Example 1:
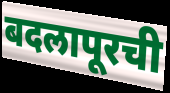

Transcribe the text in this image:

बदलापूरची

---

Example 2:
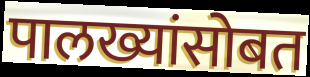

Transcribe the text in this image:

पालख्यांसोबत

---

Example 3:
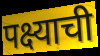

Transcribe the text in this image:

पक्ष्याची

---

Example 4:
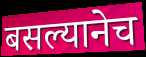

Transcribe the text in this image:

बसल्यानेच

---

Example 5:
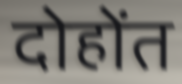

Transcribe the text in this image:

दोहोंत